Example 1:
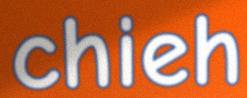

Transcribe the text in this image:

chieh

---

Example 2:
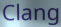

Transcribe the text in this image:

Clang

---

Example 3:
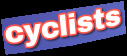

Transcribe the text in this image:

cyclists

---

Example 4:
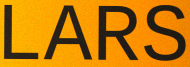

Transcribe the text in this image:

LARS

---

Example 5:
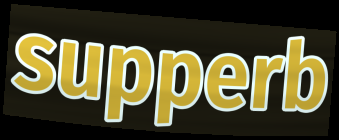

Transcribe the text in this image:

supperb